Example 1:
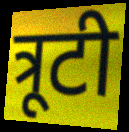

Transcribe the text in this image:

त्रूटी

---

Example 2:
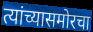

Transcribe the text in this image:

त्यांच्यासमोरचा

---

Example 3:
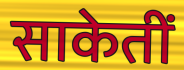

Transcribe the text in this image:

साकेतीं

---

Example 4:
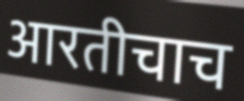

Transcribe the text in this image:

आरतीचाच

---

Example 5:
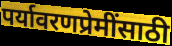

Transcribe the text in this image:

पर्यावरणप्रेमींसाठी